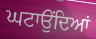
ਘਟਾਉਂਦਿਆਂ